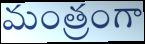
మంత్రంగా